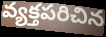
వ్యక్తపరిచిన